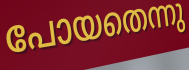
പോയതെന്നു